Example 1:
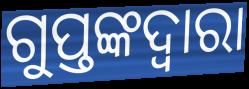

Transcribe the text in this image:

ଗୁପ୍ତଙ୍କଦ୍ୱାରା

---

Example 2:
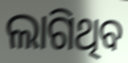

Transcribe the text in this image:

ଲାଗିଥିବ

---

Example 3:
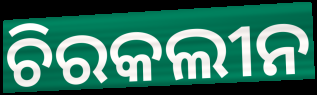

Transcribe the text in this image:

ଚିରକଲୀନ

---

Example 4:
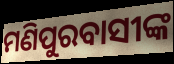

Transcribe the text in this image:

ମଣିପୁରବାସୀଙ୍କ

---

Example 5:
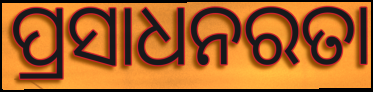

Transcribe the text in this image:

ପ୍ରସାଧନରତା